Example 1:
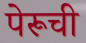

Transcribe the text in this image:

पेरूची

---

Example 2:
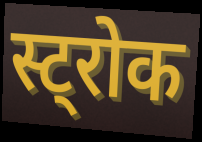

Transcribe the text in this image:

स्ट्रोक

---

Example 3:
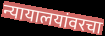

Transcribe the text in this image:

न्यायालयांवरचा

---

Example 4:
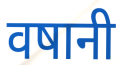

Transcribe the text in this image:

वषानी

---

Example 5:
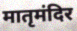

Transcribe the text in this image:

मातृमंदिर